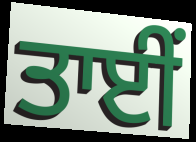
ਤਾਈਂ